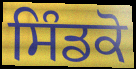
ਸਿੰਡਕੋ